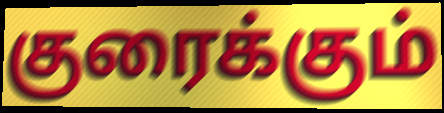
குரைக்கும்